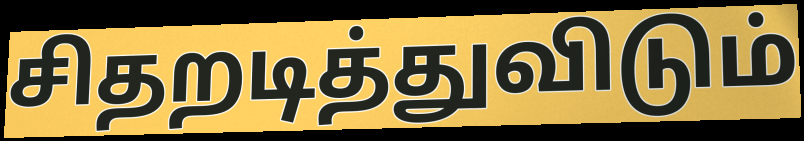
சிதறடித்துவிடும்